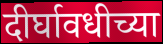
दीर्घावधीच्या